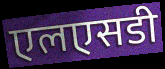
एलएसडी